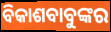
ବିକାଶବାବୁଙ୍କର